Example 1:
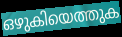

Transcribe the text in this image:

ഒഴുകിയെത്തുക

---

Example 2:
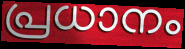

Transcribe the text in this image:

പ്രധാനം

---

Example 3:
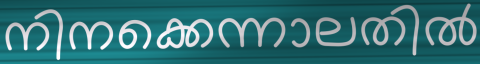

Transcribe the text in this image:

നിനക്കെന്നാലതിൽ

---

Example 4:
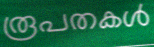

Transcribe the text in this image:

രൂപതകൾ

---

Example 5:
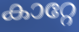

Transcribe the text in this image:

കാറ്റേ